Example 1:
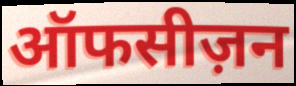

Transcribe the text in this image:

ऑफसीज़न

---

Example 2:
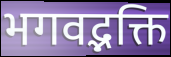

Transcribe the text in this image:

भगवद्भक्ति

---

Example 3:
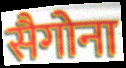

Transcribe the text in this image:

सैगोना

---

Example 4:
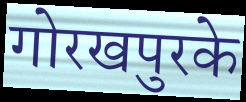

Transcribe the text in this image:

गोरखपुरके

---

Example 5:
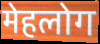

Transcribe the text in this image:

मेहलोग